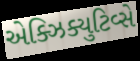
એક્ઝિક્યુટિવ્સે